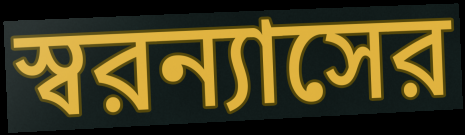
স্বরন্যাসের